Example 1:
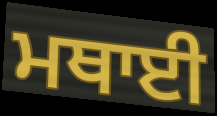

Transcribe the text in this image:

ਮਥਾਈ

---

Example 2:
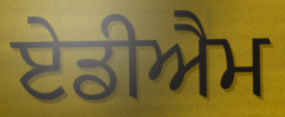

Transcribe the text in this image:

ਏਡੀਐਮ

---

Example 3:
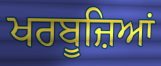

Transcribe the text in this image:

ਖਰਬੂਜ਼ਿਆਂ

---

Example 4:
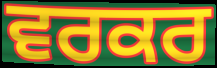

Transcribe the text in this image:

ਵਰਕਰ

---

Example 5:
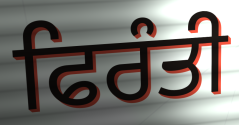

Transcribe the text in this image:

ਫਿਰੰਤੀ